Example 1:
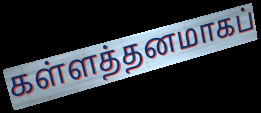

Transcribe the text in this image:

கள்ளத்தனமாகப்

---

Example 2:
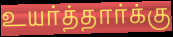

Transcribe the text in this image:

உயர்த்தார்க்கு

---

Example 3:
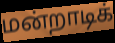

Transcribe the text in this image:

மன்றாடிக்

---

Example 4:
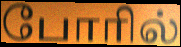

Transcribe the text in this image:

போரில்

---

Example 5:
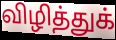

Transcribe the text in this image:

விழித்துக்